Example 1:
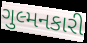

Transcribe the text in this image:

ગુલ્મનકારી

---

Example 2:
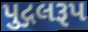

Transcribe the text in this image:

પુદ્ગલરૂપ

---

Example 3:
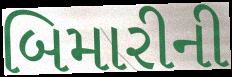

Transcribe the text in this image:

બિમારીની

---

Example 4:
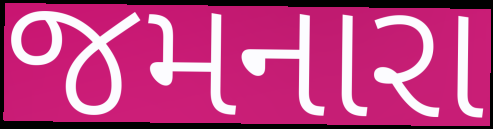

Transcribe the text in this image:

જમનારા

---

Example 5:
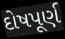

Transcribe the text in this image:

દોષપૂર્ણ